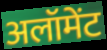
अलॉमेंट